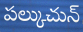
పల్కుచున్